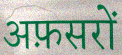
अफ़सरों